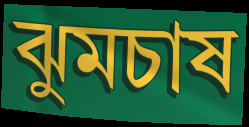
ঝুমচাষ